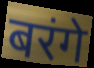
बरंगे